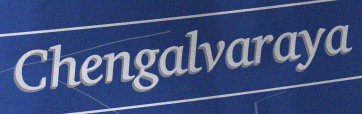
Chengalvaraya